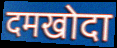
दमखोदा